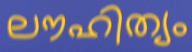
ലൗഹിത്യം